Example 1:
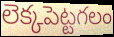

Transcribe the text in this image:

లెక్కపెట్టగలం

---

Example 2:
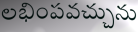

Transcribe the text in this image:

లభింపవచ్చును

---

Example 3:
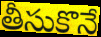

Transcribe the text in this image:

తీసుకొనే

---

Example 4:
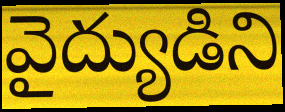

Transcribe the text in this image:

వైద్యుడిని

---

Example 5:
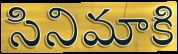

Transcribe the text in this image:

సినిమాకి